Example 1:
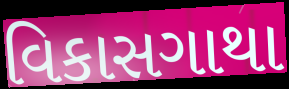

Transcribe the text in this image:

વિકાસગાથા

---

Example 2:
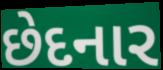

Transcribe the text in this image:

છેદનાર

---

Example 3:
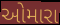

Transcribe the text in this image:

ઓમારા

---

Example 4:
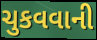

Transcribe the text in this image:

ચુકવવાની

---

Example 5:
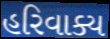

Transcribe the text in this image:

હરિવાક્ય